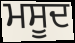
ਮਸੂਦ